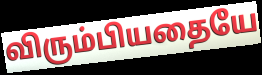
விரும்பியதையே